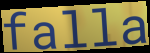
falla